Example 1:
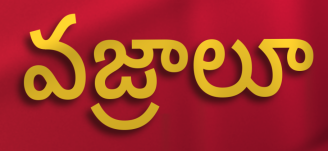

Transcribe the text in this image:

వజ్రాలూ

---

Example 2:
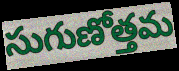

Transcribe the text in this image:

సుగుణోత్తమ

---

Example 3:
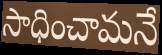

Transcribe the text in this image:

సాధించామనే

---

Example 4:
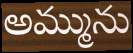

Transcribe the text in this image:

అమ్మును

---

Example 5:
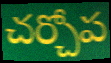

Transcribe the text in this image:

చర్చోప